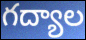
గద్యాల